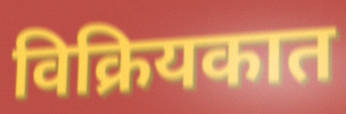
विक्रियकात